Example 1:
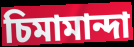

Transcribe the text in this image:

চিমামান্দা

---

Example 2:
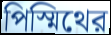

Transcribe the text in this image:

পিস্মিথের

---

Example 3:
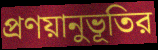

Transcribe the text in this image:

প্রণয়ানুভূতির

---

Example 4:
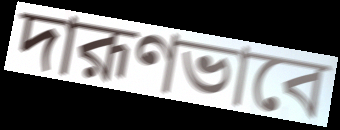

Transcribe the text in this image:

দারূণভাবে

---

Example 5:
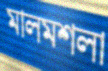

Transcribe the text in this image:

মালমশলা